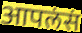
आपलंसं